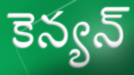
కెన్యన్